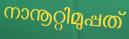
നാനൂറ്റിമുപ്പത്